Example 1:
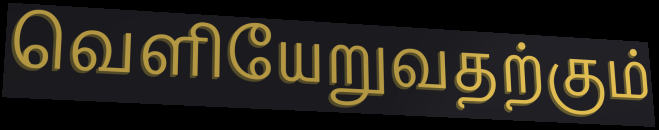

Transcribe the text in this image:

வெளியேறுவதற்கும்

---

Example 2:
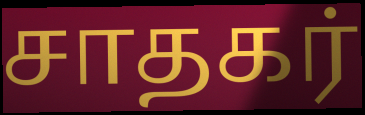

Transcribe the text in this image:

சாதகர்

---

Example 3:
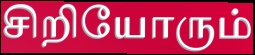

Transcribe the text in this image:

சிறியோரும்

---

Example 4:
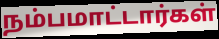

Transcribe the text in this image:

நம்பமாட்டார்கள்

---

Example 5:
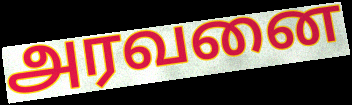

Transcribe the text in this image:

அரவனை